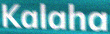
Kalaha